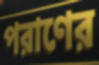
পরাণের